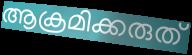
ആക്രമിക്കരുത്